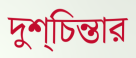
দুশ্‌চিন্তার